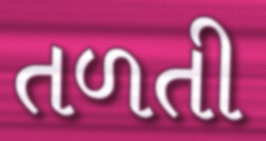
તળતી